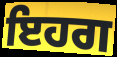
ਇਹਗ